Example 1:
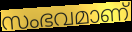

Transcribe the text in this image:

സംഭവമാണ്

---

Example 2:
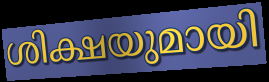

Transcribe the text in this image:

ശിക്ഷയുമായി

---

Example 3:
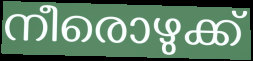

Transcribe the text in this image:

നീരൊഴുക്ക്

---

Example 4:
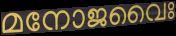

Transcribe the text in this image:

മനോജവൈഃ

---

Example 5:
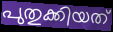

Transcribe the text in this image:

പുതുക്കിയത്